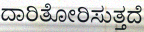
ದಾರಿತೋರಿಸುತ್ತದೆ